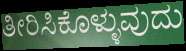
ತೀರಿಸಿಕೊಳ್ಳುವುದು